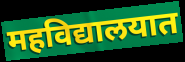
महविद्यालयात